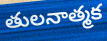
తులనాత్మక